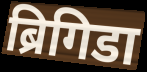
ब्रिगिडा